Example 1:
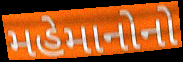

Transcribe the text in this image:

મહેમાનોનો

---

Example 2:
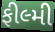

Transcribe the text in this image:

ફીલ્મી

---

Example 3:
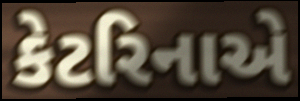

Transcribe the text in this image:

કેટરિનાએ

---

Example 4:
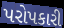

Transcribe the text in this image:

પરોપકારી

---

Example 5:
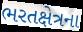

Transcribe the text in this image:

ભરતક્ષેત્રના